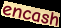
encash